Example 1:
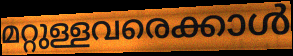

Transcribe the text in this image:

മറ്റുള്ളവരെക്കാൾ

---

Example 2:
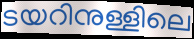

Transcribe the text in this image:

ടയറിനുള്ളിലെ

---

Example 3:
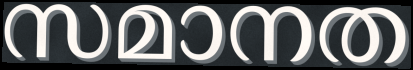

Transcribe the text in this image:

സമാനത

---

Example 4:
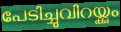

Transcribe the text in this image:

പേടിച്ചുവിറയ്ക്കും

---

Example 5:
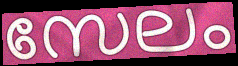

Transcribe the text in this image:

സേലം